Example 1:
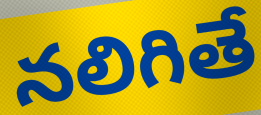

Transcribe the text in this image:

నలిగితే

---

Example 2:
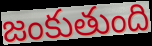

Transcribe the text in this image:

జంకుతుంది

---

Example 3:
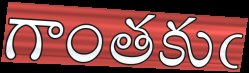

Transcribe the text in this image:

గాంతకుఁ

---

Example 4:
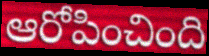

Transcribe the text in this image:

ఆరోపించింది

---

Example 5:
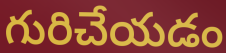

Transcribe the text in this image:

గురిచేయడం